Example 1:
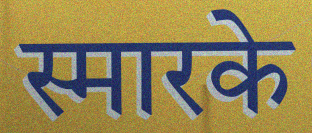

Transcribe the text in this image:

स्मारके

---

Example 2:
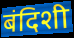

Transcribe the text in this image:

बंदिशी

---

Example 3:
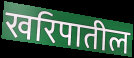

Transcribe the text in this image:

खरिपातील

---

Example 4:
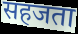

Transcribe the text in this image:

सहजता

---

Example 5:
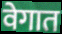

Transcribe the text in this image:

वेगात